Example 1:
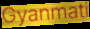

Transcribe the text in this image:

Gyanmati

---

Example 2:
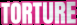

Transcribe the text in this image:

TORTURE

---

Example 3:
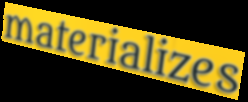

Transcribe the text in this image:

materializes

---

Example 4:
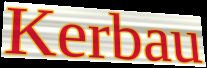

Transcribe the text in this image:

Kerbau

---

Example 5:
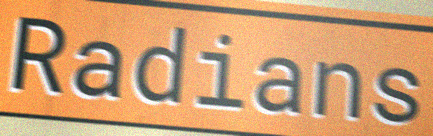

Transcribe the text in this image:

Radians